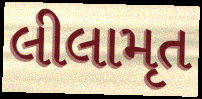
લીલામૃત